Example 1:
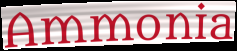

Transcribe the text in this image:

Ammonia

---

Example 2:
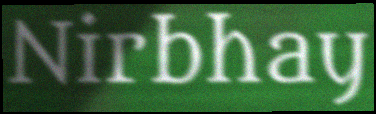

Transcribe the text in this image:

Nirbhay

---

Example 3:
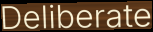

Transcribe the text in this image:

Deliberate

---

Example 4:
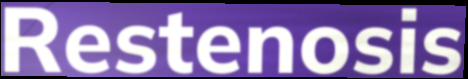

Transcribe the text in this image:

Restenosis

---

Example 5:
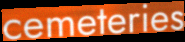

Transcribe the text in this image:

cemeteries